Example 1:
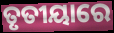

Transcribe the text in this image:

ତୃତୀୟାରେ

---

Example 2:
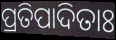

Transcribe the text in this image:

ପ୍ରତିପାଦିତାଃ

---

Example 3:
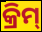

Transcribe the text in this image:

କ୍ରିମ୍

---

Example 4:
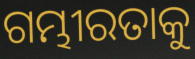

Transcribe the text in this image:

ଗମ୍ଭୀରତାକୁ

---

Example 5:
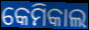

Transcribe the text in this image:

କେମିକାଲ